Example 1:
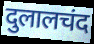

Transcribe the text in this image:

दुलालचंद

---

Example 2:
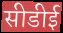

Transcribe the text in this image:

सीडीई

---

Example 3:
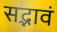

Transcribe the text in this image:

सद्भावं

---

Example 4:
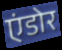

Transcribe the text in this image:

एंडोर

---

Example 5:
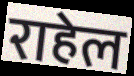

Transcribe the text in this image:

राहेल